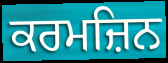
ਕਰਮਜ਼ਿਨ